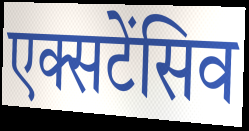
एक्सटेंसिव